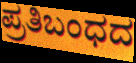
ಪ್ರತಿಬಂಧದ